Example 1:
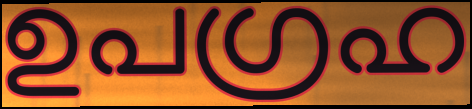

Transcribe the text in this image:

ഉപഗ്രഹ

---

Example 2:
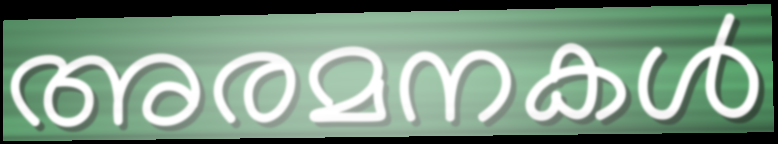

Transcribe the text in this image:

അരമനകൾ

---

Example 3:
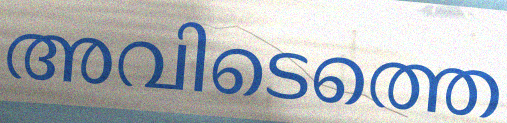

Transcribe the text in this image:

അവിടെത്തെ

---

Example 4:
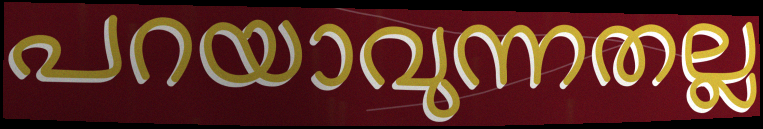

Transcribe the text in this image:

പറയാവുന്നതല്ല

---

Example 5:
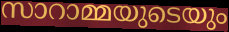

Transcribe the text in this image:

സാറാമ്മയുടെയും